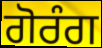
ਗੋਰੰਗ